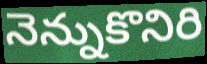
నెన్నుకొనిరి